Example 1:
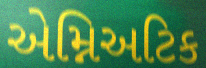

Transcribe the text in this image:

એમ્નિઅટિક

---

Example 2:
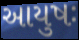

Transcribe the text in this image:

આયુષઃ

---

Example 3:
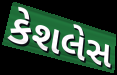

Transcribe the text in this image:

કેશલેસ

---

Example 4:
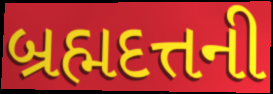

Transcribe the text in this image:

બ્રહ્મદત્તની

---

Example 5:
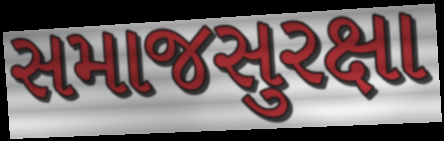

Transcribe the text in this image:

સમાજસુરક્ષા